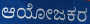
ಆಯೋಜಕರ